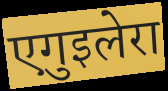
एगुइलेरा